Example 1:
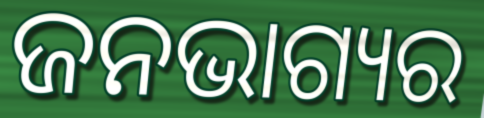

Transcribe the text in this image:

ଜନଭାଗ୍ୟର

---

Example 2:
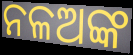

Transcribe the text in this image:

ନଳଅଙ୍କ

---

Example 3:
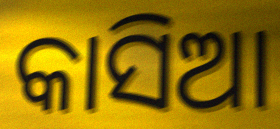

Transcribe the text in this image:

କାସିଆ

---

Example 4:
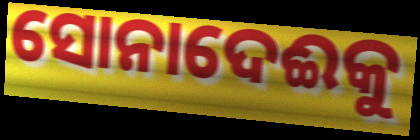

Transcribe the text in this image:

ସୋନାଦେଈକୁ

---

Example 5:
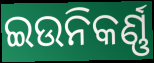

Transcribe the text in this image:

ଇଉନିକର୍ଣ୍ଣ